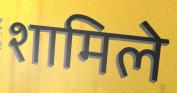
शामिले